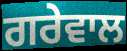
ਗਰੇਵਾਲ